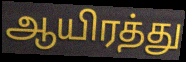
ஆயிரத்து